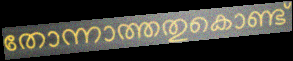
തോന്നാത്തതുകൊണ്ട്